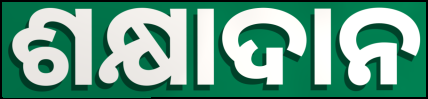
ଶକ୍ଷାଦାନ